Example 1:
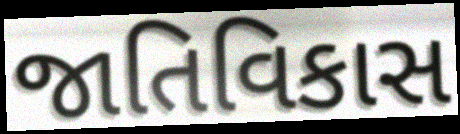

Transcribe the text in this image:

જાતિવિકાસ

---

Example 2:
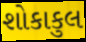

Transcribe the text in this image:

શોકાકુલ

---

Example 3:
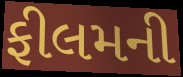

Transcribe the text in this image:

ફીલમની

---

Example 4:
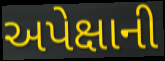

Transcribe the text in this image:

અપેક્ષાની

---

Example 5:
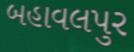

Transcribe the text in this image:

બહાવલપુર